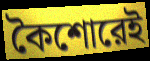
কৈশোরেই